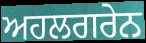
ਅਹਲਗਰੇਨ